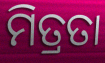
ମିତ୍ରତା